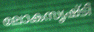
ലോകസൃഷ്ടി